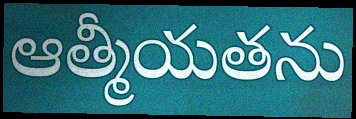
ఆత్మీయతను